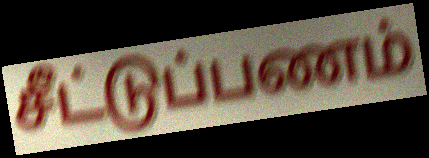
சீட்டுப்பணம்